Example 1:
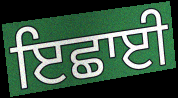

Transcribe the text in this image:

ਇਛਾਈ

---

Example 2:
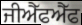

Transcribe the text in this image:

ਜੀਐੱਫਐੱਫ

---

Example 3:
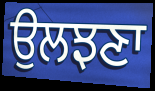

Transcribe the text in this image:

ਉਲਝਣਾ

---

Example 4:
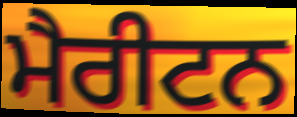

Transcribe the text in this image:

ਮੈਰੀਟਨ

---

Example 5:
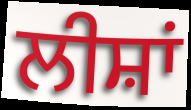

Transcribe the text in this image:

ਲੀਸ਼ਾਂ